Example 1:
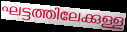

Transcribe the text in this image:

ഘട്ടത്തിലേക്കുള്ള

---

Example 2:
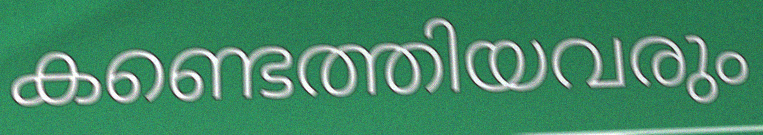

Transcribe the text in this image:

കണ്ടെത്തിയവരും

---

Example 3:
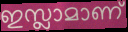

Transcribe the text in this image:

ഇസ്ലാമാണ്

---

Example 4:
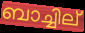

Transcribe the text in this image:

ബാച്ചില്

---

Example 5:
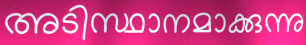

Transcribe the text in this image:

അടിസ്ഥാനമാക്കുന്നു